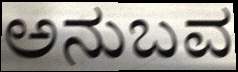
ಅನುಬವ